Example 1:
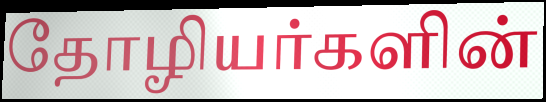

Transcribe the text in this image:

தோழியர்களின்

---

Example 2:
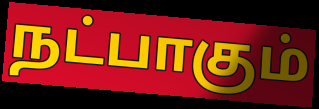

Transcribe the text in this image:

நட்பாகும்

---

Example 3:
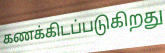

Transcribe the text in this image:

கணக்கிடப்படுகிறது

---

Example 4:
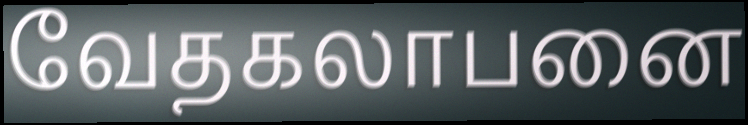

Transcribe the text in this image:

வேதகலாபனை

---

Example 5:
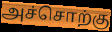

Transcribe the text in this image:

அச்சொற்கு